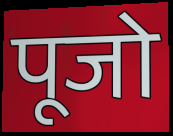
पूजो